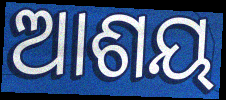
ଆଶୟ